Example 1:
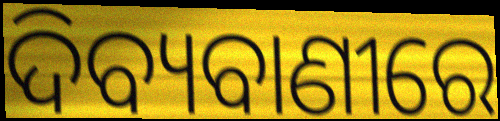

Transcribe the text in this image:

ଦିବ୍ୟବାଣୀରେ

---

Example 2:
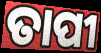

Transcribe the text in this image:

ତାପୀ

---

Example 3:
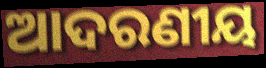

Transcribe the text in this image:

ଆଦରଣୀୟ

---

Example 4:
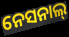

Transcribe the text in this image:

ନେସନାଲ୍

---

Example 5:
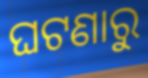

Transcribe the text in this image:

ଘଟଣାରୁ